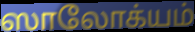
ஸாலோக்யம்